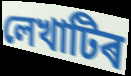
লেখাটিৰ